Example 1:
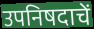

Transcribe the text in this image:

उपनिषदाचें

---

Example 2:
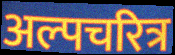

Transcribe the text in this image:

अल्पचरित्र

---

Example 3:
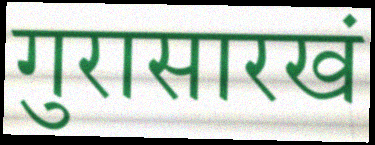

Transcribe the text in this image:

गुरासारखं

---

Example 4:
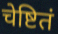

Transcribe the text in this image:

चेष्टितं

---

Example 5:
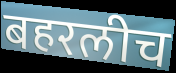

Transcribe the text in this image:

बहरलीच